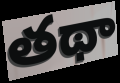
తథా